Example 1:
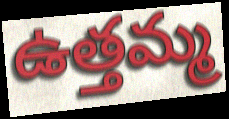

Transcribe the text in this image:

ఉత్తమ్మ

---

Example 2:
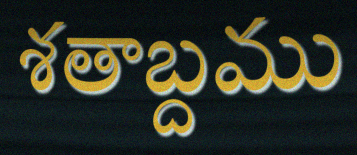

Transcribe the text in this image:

శతాబ్దము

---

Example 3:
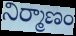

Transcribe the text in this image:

నిర్మాణం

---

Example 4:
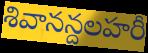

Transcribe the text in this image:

శివానన్దలహరీ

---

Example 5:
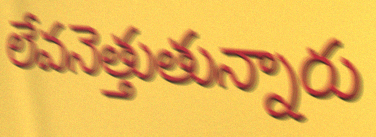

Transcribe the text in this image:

లేవనెత్తుతున్నారు